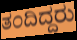
ತಂದಿದ್ದರು